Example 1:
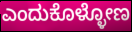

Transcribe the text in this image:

ಎಂದುಕೊಳ್ಳೋಣ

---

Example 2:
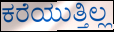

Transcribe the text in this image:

ಕರೆಯುತ್ತಿಲ್ಲ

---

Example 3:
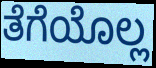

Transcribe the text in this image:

ತೆಗೆಯೊಲ್ಲ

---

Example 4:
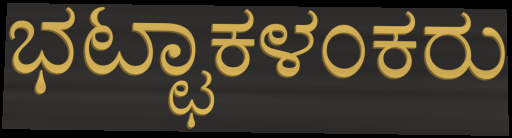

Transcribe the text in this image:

ಭಟ್ಟಾಕಳಂಕರು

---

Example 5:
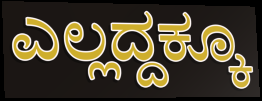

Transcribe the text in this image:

ಎಲ್ಲದ್ದಕ್ಕೂ